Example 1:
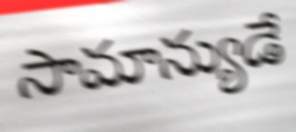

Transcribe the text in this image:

సామాన్యుడే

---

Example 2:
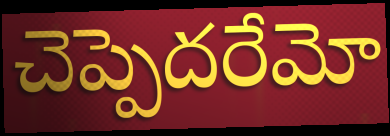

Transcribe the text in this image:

చెప్పెదరేమో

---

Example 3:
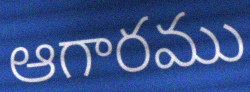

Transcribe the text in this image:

ఆగారము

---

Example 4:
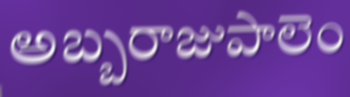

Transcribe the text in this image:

అబ్బరాజుపాలెం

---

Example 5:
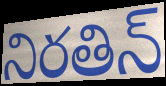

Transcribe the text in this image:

నిరతిన్